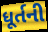
ધૂર્તની